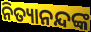
ନିତ୍ୟାନନ୍ଦଙ୍କ